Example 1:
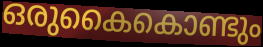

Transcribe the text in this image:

ഒരുകൈകൊണ്ടും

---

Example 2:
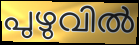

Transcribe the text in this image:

പുഴുവിൽ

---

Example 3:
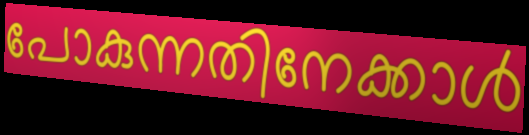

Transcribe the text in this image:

പോകുന്നതിനേക്കാൾ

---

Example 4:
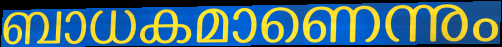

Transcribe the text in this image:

ബാധകമാണെന്നും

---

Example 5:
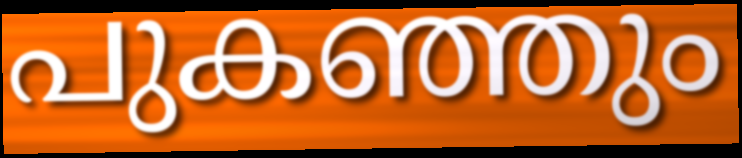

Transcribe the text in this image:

പുകഞ്ഞും